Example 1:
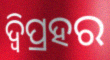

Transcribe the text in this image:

ଦ୍ବିପ୍ରହର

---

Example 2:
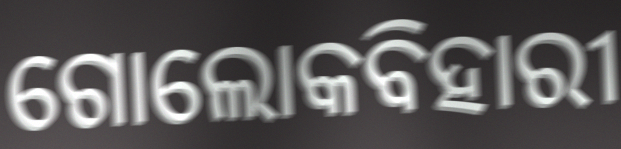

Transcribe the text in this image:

ଗୋଲୋକବିହାରୀ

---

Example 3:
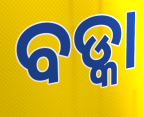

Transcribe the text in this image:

ବଡ୍କା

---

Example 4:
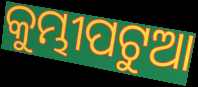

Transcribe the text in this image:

କୁମ୍ଭୀପଟୁଆ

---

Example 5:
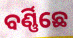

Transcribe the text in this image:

ବର୍ଣ୍ଣିଛେ